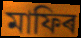
মাফিৰ